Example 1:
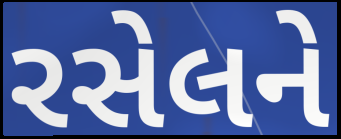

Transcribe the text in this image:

રસેલને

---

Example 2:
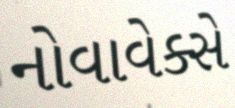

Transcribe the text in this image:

નોવાવેક્સે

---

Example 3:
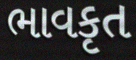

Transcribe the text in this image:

ભાવકૃત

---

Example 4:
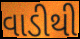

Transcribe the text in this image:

વાડીથી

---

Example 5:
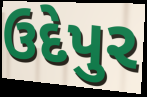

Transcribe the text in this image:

ઉદેપુર